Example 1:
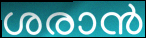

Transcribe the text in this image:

ശരാൻ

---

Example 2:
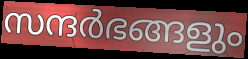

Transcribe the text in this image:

സന്ദർഭങ്ങളും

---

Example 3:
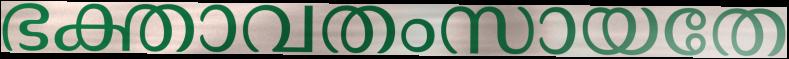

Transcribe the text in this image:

ഭക്താവതംസായതേ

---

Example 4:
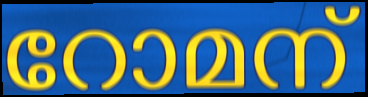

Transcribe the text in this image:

റോമന്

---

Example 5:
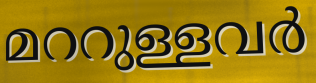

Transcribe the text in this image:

മററുള്ളവർ